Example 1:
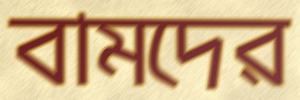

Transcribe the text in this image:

বামদেৱ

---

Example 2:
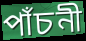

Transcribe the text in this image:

পাঁচনী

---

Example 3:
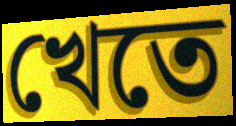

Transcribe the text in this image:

খেতে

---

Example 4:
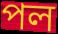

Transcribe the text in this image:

পল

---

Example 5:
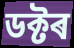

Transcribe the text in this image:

ডক্টৰ